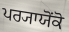
ਪਰ੍ਯਾਯੋਂਕੋ